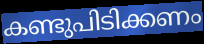
കണ്ടുപിടിക്കണം